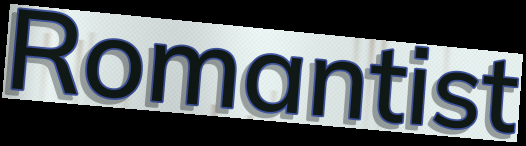
Romantist